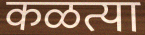
कळत्या